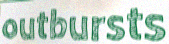
outbursts